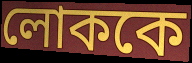
লোককে